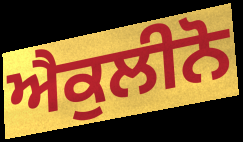
ਐਕੁਲੀਨੋ